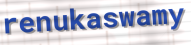
renukaswamy